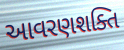
આવરણશક્તિ